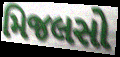
મિજલસો